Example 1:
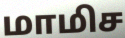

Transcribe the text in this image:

மாமிச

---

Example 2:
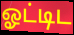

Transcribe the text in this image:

ஓட்டிட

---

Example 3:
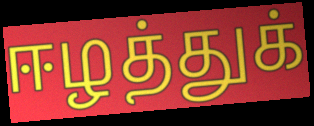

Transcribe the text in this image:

ஈழத்துக்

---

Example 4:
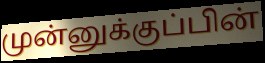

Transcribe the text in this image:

முன்னுக்குப்பின்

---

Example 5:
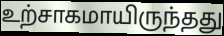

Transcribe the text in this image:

உற்சாகமாயிருந்தது